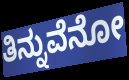
ತಿನ್ನುವೆನೋ